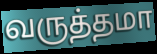
வருத்தமா